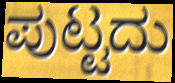
ಪುಟ್ಟದು